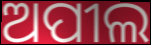
ଅପୀଲ